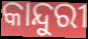
କାନ୍ଦୁରୀ